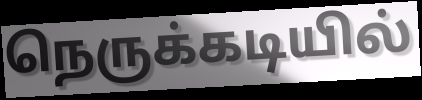
நெருக்கடியில்